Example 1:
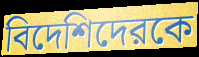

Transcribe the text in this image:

বিদেশিদেরকে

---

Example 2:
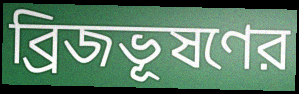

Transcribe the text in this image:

ব্রিজভূষণের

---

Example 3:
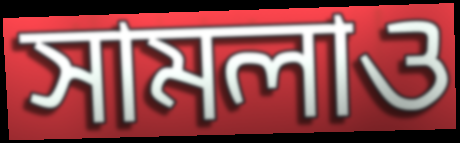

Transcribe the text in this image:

সামলাও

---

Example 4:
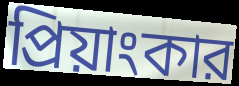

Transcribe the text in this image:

প্রিয়াংকার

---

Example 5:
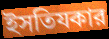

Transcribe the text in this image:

ইসতিযকার